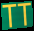
TT